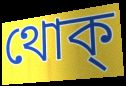
থোক্